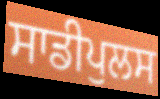
ਸਾਡੀਪੁਲਸ